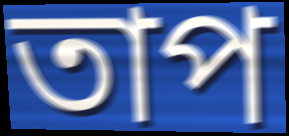
তাপ